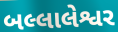
બલ્લાલેશ્વર